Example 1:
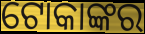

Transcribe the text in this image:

ଟୋକାଙ୍କର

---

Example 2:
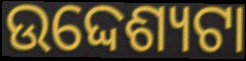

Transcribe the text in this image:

ଉଦ୍ଦେଶ୍ୟଟା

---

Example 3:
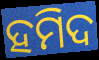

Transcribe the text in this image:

ହମିଦ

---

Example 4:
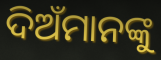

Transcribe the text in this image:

ଦିଅଁମାନଙ୍କୁ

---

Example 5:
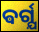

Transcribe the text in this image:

ଵର୍ଗ୍ଯ